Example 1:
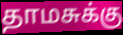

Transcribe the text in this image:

தாமசுக்கு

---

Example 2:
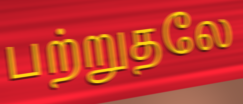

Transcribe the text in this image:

பற்றுதலே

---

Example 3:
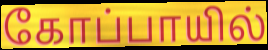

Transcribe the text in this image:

கோப்பாயில்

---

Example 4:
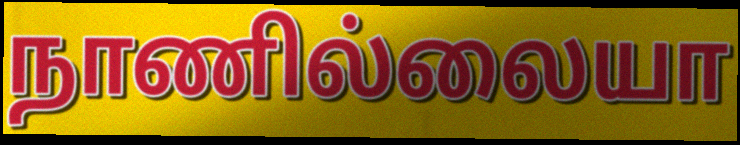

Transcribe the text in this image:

நாணில்லையா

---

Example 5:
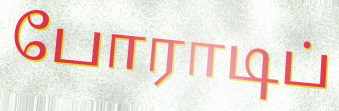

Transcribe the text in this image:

போராடிப்